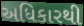
અધિકારથી